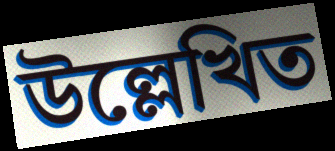
উল্লেখিত